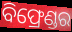
ବିଫ୍ରେଣ୍ଡର